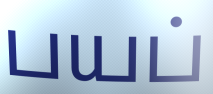
பயப்